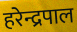
हरेन्द्रपाल